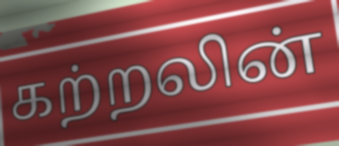
கற்றலின்